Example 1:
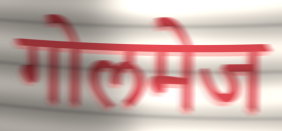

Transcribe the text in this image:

गोलमेज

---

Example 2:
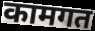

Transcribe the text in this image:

कामगत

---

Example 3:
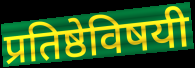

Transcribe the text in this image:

प्रतिष्ठेविषयी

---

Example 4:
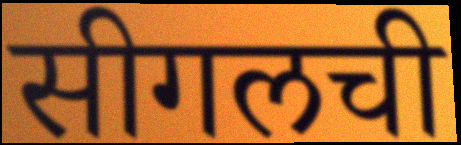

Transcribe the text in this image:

सीगलची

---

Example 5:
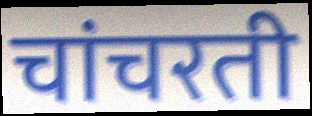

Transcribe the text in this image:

चांचरती